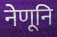
नेणूनि